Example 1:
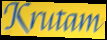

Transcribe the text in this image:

Krutam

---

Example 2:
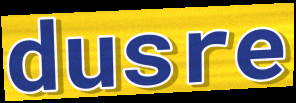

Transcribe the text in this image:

dusre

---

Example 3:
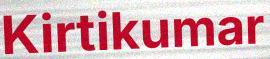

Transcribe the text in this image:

Kirtikumar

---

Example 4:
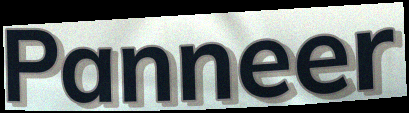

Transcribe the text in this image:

Panneer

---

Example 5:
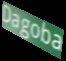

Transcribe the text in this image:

Dagoba